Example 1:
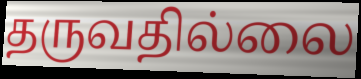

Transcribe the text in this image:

தருவதில்லை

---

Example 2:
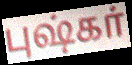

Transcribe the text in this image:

புஷ்கர்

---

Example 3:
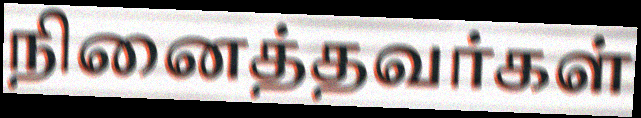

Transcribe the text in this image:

நினைத்தவர்கள்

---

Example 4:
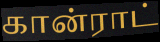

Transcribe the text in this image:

கான்ராட்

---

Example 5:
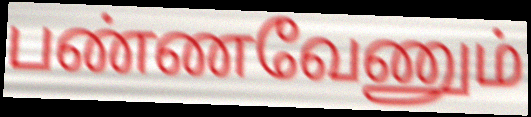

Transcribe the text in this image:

பண்ணவேணும்